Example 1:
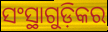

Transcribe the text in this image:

ସଂସ୍ଥାଗୁଡ଼ିକର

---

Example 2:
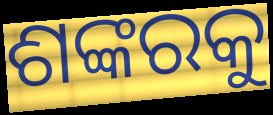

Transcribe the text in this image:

ଶଙ୍କରକୁ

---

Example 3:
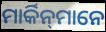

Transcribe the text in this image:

ମାର୍କିନ୍‌ମାନେ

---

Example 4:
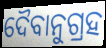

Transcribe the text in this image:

ଦୈବାନୁଗ୍ରହ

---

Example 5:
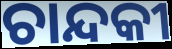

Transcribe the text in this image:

ଚାନ୍ଦକୀ